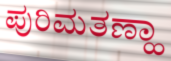
ಪುರಿಮತಣ್ಹಾ